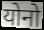
योनो